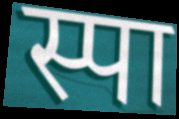
स्पा